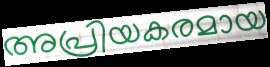
അപ്രിയകരമായ